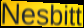
Nesbitt